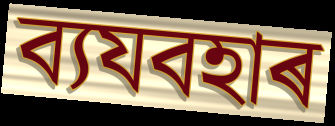
ব্যযবহাৰ